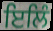
ਇਲਿੰ